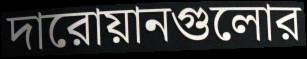
দারোয়ানগুলোর